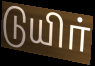
டுயிர்